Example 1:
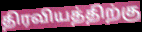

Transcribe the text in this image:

திரவியத்திற்கு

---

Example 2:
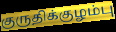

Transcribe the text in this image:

குருதிக்குழம்பு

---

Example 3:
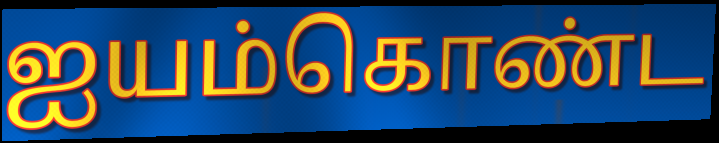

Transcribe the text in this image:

ஐயம்கொண்ட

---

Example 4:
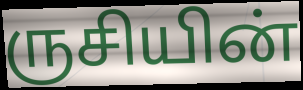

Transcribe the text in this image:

ருசியின்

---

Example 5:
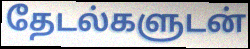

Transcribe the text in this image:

தேடல்களுடன்